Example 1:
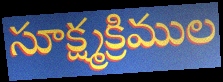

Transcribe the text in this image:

సూక్ష్మక్రిముల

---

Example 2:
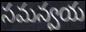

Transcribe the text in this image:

సమన్వయ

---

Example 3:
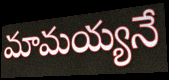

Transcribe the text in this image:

మామయ్యనే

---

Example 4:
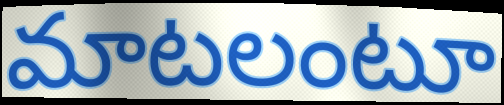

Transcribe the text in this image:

మాటలంటూ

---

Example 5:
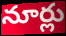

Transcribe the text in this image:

నూర్లు